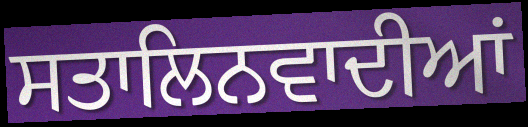
ਸਤਾਲਿਨਵਾਦੀਆਂ